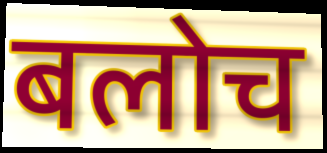
बलोच